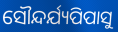
ସୌନ୍ଦର୍ଯ୍ୟପିପାସୁ